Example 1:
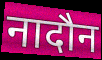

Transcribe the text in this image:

नादौन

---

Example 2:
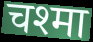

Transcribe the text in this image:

चश्मा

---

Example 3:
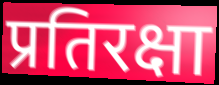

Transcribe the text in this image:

प्रतिरक्षा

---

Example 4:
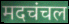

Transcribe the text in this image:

मदचंचल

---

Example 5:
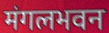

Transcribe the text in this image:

मंगलभवन